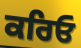
ਕਰਿਓ